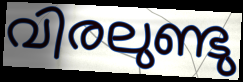
വിരലുണ്ടു